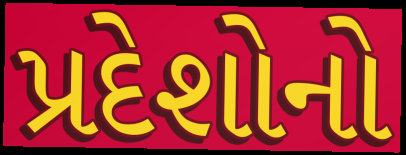
પ્રદેશોનો